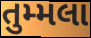
તુમ્મલા